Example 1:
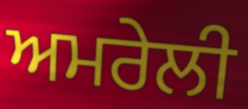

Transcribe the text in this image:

ਅਮਰੇਲੀ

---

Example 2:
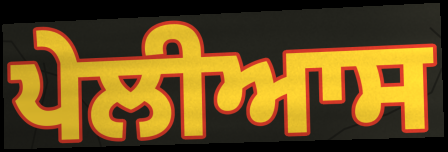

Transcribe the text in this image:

ਪੇਲੀਆਸ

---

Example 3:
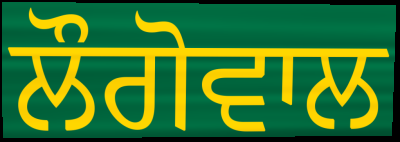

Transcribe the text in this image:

ਲੌਗੋਵਾਲ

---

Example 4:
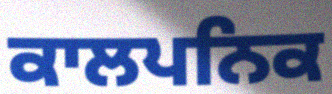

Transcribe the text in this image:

ਕਾਲਪਨਿਕ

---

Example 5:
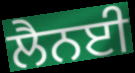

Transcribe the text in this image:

ਲੈਨਈ